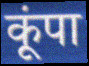
कूंपा